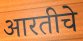
आरतीचे